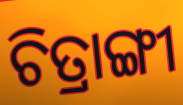
ଚିତ୍ରାଙ୍ଗୀ